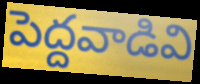
పెద్దవాడివి